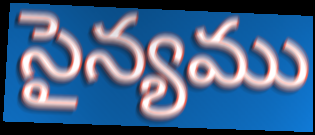
సైన్యము